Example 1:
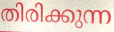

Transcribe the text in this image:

തിരിക്കുന്ന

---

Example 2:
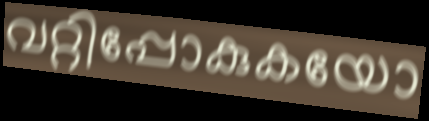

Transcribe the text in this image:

വറ്റിപ്പോകുകയോ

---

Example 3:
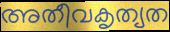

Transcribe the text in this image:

അതീവകൃത്യത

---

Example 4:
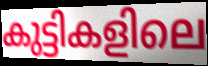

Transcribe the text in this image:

കുട്ടികളിലെ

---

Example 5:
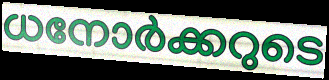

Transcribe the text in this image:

ധനോർക്കറുടെ